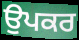
ਉਪਕਰ